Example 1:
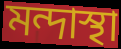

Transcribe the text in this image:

মন্দাস্থা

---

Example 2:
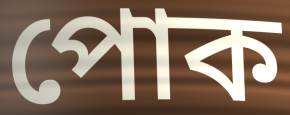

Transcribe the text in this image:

পোক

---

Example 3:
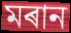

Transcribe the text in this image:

মৰান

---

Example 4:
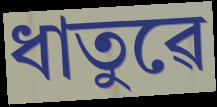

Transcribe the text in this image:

ধাতুৱে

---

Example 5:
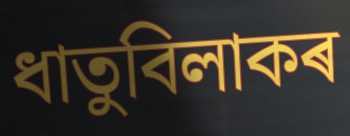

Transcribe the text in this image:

ধাতুবিলাকৰ